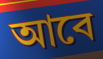
আবে